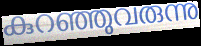
കുറഞ്ഞുവരുന്നു